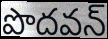
పొదవన్